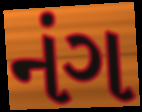
નંગ